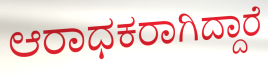
ಆರಾಧಕರಾಗಿದ್ದಾರೆ